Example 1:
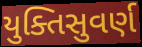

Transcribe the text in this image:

યુક્તિસુવર્ણ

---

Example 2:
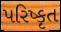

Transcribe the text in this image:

પરિષ્કૃત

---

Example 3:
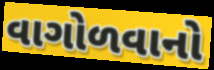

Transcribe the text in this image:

વાગોળવાનો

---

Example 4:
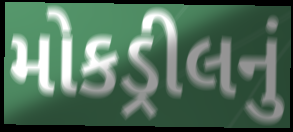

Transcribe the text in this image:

મોકડ્રીલનું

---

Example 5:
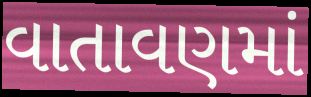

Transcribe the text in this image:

વાતાવણમાં